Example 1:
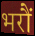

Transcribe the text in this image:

भरौं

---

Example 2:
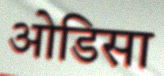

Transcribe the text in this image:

ओडिसा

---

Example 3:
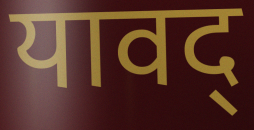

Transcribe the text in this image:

यावद्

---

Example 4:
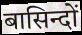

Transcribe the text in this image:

बासिन्दों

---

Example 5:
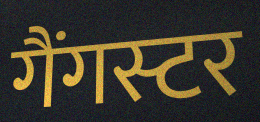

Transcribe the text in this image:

गैंगस्‍टर